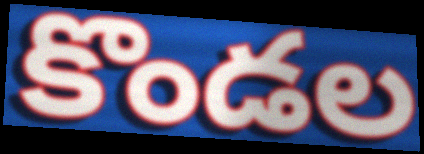
కొండల